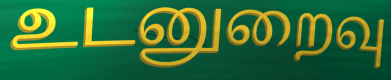
உடனுறைவு